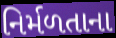
નિર્મળતાના